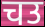
चउ